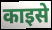
काइसे